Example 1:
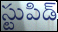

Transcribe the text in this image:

స్టుపిడ్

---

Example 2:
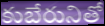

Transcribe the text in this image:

కుబేరునితో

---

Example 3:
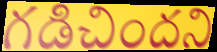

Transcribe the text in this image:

గడిచిందని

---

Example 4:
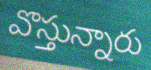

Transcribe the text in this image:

వొస్తున్నారు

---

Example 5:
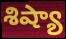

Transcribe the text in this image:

శిష్యా